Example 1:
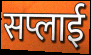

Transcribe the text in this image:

सप्‍लाई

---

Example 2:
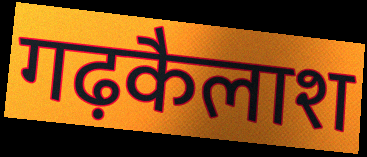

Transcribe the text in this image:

गढ़कैलाश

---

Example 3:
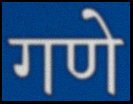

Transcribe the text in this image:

गणे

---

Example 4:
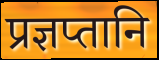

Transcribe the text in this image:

प्रज्ञप्तानि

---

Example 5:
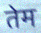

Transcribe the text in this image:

तेम